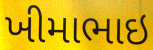
ખીમાભાઇ